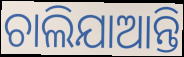
ଚାଲିଯାଆନ୍ତି